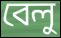
বেলু